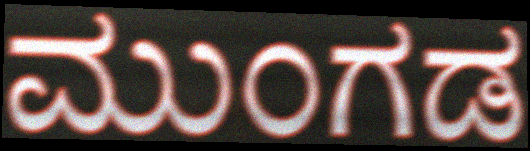
ಮುಂಗಡ